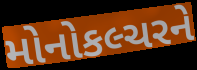
મોનોકલ્ચરને